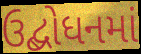
ઉદ્બોધનમાં